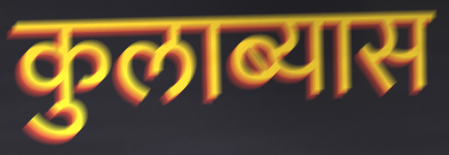
कुलाब्यास